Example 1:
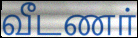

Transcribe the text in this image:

வீடணர்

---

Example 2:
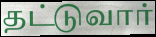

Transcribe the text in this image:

தட்டுவார்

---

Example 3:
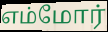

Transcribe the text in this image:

எம்மோர்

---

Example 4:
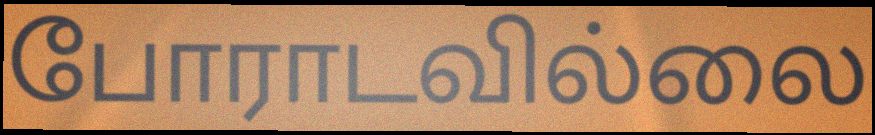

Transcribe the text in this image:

போராடவில்லை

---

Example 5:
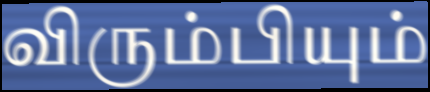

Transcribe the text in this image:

விரும்பியும்